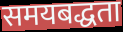
समयबद्धता